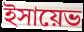
ইসায়েভ